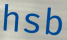
hsb